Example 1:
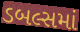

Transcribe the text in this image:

ડબલ્સમાં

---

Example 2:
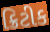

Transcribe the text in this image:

ક્રિટીક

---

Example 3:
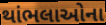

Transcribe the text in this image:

થાંભલાઓના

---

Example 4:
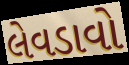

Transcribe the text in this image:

લેવડાવો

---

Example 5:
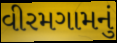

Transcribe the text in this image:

વીરમગામનું